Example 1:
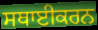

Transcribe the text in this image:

ਸਥਾਈਕਰਨ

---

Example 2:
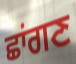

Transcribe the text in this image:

ਛਾਂਗਣ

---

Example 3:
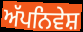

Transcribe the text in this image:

ਅੱਪਨਿਵੇਸ਼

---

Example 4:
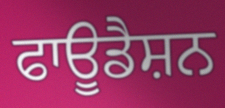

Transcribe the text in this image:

ਫਾਊਡੈਸ਼ਨ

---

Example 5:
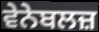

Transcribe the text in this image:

ਵੇਨੇਬਲਜ਼